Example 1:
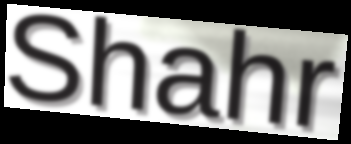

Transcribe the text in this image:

Shahr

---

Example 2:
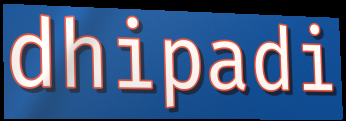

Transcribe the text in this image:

dhipadi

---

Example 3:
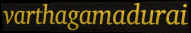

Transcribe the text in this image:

varthagamadurai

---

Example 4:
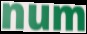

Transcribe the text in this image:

num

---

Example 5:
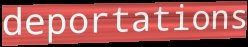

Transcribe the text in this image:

deportations